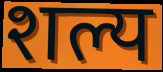
शल्‍य